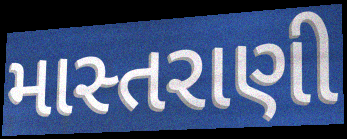
માસ્તરાણી